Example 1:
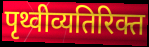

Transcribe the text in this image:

पृथ्वीव्यतिरिक्त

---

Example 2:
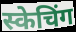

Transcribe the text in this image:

स्केचिंग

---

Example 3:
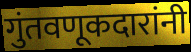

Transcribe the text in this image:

गुंतवणूकदारांनी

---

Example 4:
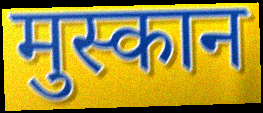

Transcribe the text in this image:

मुस्कान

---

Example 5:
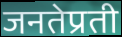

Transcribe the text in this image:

जनतेप्रती